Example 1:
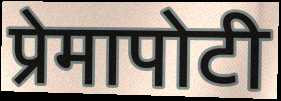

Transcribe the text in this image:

प्रेमापोटी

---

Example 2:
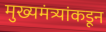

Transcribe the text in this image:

मुख्यमंत्र्यांकडून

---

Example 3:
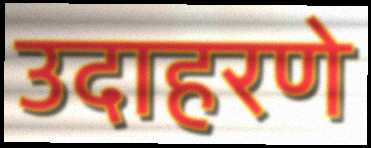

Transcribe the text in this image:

उदाहरणे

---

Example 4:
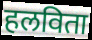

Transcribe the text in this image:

हलविता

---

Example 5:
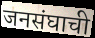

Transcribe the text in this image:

जनसंघाची